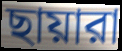
ছায়ারা